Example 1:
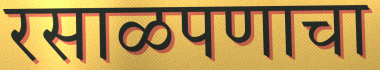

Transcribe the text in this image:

रसाळपणाचा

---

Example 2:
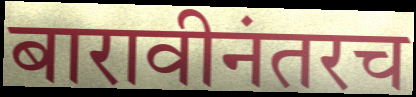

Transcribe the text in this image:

बारावीनंतरच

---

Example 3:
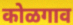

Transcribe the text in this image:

कोळगाव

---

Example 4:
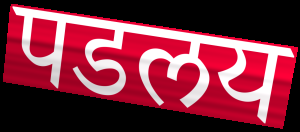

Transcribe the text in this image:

पडलय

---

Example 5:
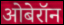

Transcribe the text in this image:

ओबेरॉन